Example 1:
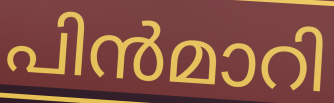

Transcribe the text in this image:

പിൻമാറി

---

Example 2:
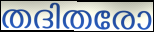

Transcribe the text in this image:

തദിതരോ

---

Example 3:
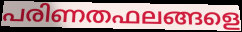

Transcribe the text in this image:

പരിണതഫലങ്ങളെ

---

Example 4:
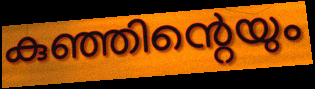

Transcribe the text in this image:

കുഞ്ഞിന്റെയും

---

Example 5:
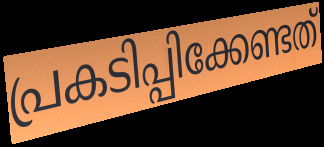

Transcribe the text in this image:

പ്രകടിപ്പിക്കേണ്ടത്